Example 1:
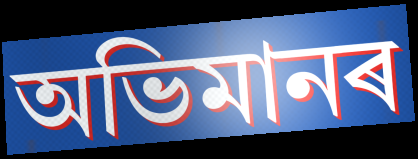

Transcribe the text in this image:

অভিমানৰ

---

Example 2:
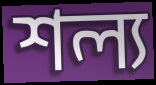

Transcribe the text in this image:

শল্য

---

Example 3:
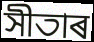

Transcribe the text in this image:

সীতাৰ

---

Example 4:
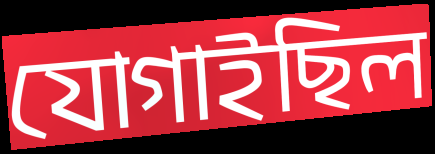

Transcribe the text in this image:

যোগাইছিল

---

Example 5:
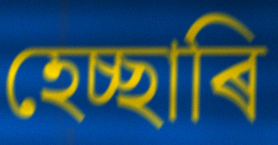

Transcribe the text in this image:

হেচ্ছাৰি